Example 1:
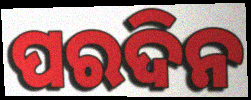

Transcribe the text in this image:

ପରଦିନ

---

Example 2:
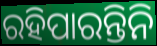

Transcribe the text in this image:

ରହିପାରନ୍ତିନି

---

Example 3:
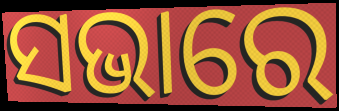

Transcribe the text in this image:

ସଭାରେ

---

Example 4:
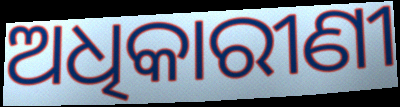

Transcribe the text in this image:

ଅଧିକାରୀଣୀ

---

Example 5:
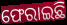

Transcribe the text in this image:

ଫେରାଇଛି